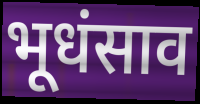
भूधंसाव